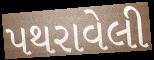
પથરાવેલી